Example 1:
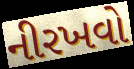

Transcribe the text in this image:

નીરખવો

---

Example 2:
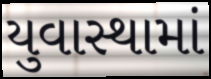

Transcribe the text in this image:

યુવાસ્થામાં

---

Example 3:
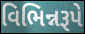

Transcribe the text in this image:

વિભિન્નરૂપે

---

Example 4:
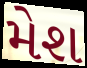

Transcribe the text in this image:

મેશ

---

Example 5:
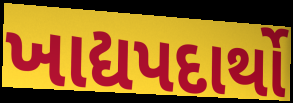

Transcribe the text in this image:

ખાદ્યપદાર્થો